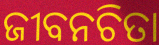
ଜୀବନଚିତା